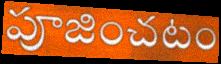
పూజించటం